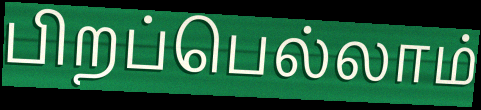
பிறப்பெல்லாம்